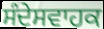
ਸੰਦੇਸਵਾਹਕ